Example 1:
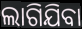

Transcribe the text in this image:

ଲାଗିଯିବା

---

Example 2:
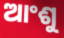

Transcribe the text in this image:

ଆଂଶୁ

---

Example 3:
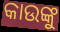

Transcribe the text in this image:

କାଉଙ୍କୁ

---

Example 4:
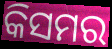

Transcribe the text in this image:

କିସମର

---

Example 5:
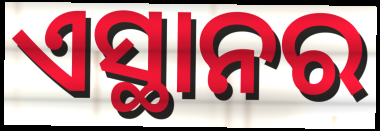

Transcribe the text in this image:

ଏସ୍ଥାନର